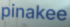
pinakee